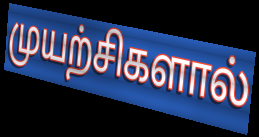
முயற்சிகளால்